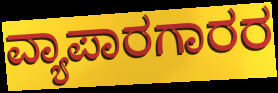
ವ್ಯಾಪಾರಗಾರರ